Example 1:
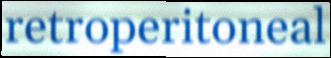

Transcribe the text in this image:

retroperitoneal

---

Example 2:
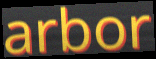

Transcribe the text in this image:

arbor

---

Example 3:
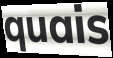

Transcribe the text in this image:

quais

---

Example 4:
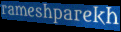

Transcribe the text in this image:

rameshparekh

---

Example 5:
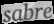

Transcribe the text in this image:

sabre